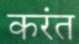
करंत